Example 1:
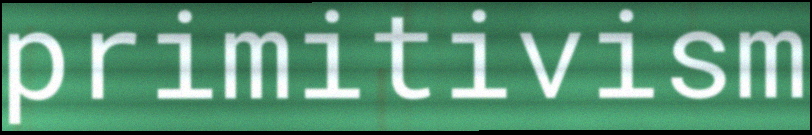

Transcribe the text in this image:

primitivism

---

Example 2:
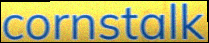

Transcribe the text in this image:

cornstalk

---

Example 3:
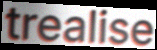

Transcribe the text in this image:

trealise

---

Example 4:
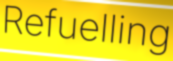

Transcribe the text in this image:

Refuelling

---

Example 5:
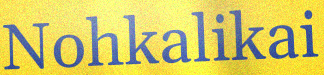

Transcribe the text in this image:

Nohkalikai